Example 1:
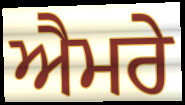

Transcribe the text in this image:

ਐਮਰੇ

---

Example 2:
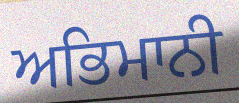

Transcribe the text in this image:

ਅਭਿਮਾਨੀ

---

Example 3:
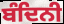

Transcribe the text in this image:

ਬੰਦਿਨੀ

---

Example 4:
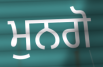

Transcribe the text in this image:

ਮੁਨਗੋ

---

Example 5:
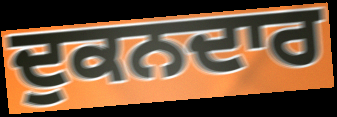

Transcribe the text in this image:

ਦੁਕਨਦਾਰ